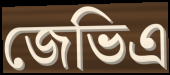
জেভিএ